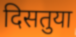
दिसतुया